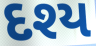
દશ્ય